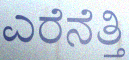
ಎರೆನೆತ್ತಿ